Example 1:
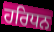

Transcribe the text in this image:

ਹਰਿਧਨ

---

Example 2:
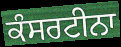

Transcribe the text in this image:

ਕੰਸਰਟੀਨਾ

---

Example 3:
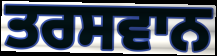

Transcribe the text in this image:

ਤਰਸਵਾਨ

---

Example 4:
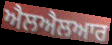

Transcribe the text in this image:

ਐਲਐਲਆਰ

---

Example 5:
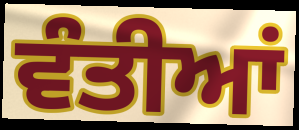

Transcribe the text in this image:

ਵੰਤੀਆਂ